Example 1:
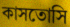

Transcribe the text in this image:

কাসতোসি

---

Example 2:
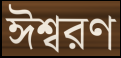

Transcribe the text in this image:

ঈশ্বরণ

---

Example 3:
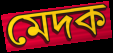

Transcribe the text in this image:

মেদক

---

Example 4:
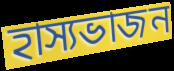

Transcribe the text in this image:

হাস্যভাজন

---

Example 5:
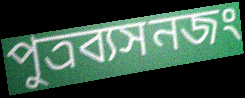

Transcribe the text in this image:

পুত্রব্যসনজং